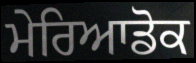
ਮੇਰਿਆਡੋਕ